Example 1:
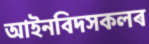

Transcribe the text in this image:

আইনবিদসকলৰ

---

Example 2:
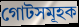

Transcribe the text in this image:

গোটসমূহক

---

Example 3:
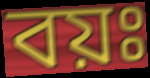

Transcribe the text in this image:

বয়ঃ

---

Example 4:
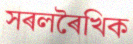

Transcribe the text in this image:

সৰলৰৈখিক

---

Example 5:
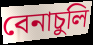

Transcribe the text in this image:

বেনাচুলি